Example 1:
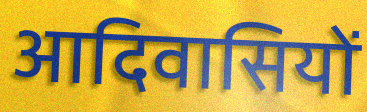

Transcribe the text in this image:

आदिवासियों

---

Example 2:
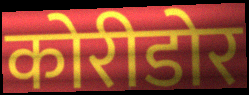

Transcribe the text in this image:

कोरीडोर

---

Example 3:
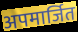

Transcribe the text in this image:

अपमार्जित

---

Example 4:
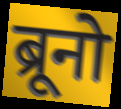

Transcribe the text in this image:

ब्रूनो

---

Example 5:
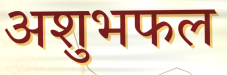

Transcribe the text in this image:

अशुभफल